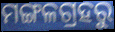
ମଙ୍ଗଳଗ୍ରହରୁ